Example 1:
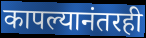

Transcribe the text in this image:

कापल्यानंतरही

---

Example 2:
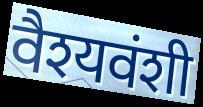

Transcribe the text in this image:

वैश्यवंशी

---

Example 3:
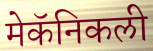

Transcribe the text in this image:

मेकॅनिकली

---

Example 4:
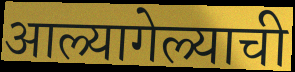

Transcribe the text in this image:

आल्यागेल्याची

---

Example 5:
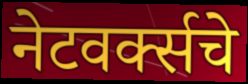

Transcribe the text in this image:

नेटवर्क्सचे